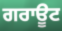
ਗਰਾਊਟ